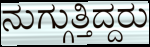
ನುಗ್ಗುತ್ತಿದ್ದರು